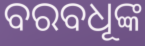
ବରବଧୂଙ୍କ